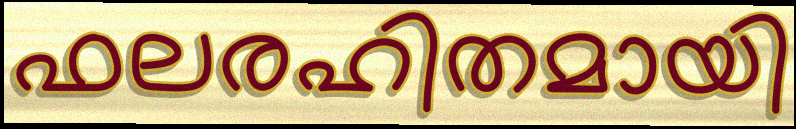
ഫലരഹിതമായി